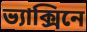
ভ্যাক্সিনে